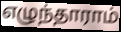
எழுந்தாராம்